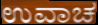
ಉವಾಚ